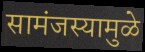
सामंजस्यामुळे